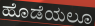
ಹೊಡೆಯಲೂ